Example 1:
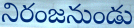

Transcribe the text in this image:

నిరంజనుండు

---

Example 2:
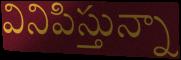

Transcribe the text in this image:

వినిపిస్తున్నా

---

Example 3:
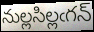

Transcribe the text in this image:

నుల్లసిల్లఁగన్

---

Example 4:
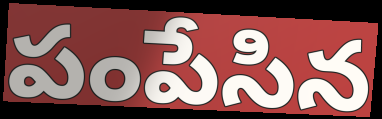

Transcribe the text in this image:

పంపేసిన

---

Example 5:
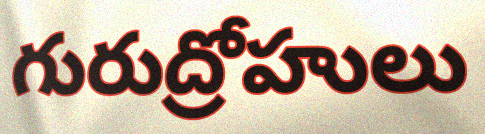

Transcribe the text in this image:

గురుద్రోహులు